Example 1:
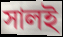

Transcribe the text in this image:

সালই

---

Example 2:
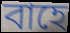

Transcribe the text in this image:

বাহে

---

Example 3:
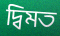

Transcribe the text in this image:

দ্বিমত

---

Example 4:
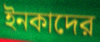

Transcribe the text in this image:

ইনকাদের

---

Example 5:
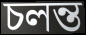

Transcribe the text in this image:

চলন্ত